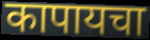
कापायचा